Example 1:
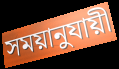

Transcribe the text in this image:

সময়ানুযায়ী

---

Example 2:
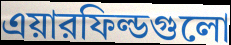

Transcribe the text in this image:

এয়ারফিল্ডগুলো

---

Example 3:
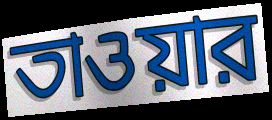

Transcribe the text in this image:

তাওয়ার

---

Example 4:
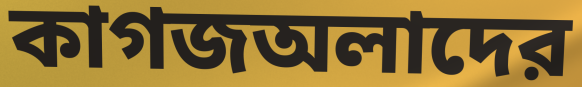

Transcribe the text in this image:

কাগজঅলাদের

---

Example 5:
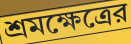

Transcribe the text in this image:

শ্রমক্ষেত্রের